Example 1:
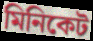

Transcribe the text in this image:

মিনিকেট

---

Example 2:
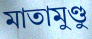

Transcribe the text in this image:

মাতামুণ্ডু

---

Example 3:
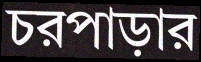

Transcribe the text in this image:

চরপাড়ার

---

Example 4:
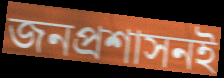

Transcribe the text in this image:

জনপ্রশাসনই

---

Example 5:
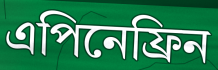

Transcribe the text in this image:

এপিনেফ্রিন